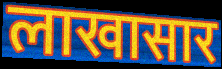
लाखासार